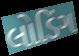
લોડિંગ